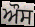
ਔਸ